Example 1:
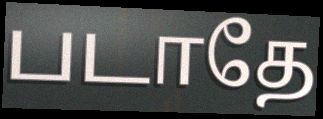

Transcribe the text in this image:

படாதே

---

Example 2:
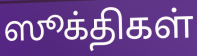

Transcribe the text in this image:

ஸூக்திகள்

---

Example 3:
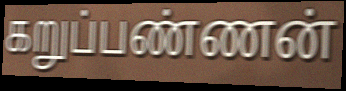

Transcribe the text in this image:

கறுப்பண்ணன்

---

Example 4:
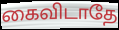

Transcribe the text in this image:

கைவிடாதே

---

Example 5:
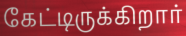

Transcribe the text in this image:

கேட்டிருக்கிறார்